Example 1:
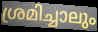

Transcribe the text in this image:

ശ്രമിച്ചാലും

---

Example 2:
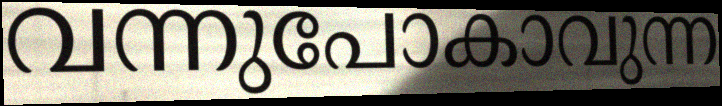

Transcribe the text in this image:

വന്നുപോകാവുന്ന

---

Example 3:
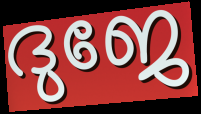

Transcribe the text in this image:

ദുജേ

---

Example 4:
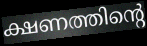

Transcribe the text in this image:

ക്ഷണത്തിന്റെ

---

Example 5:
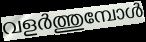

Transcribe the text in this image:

വളർത്തുമ്പോൾ